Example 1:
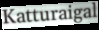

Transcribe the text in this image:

Katturaigal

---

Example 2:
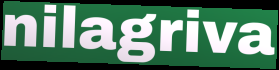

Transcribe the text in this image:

nilagriva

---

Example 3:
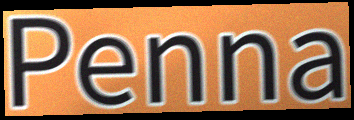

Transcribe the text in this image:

Penna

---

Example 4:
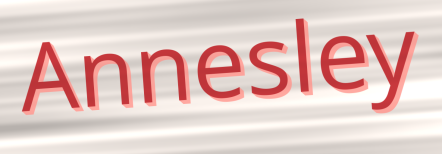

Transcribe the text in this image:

Annesley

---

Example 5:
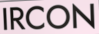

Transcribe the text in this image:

IRCON